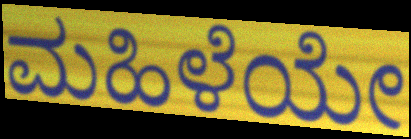
ಮಹಿಳೆಯೇ